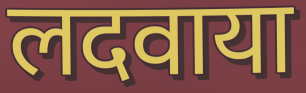
लदवाया